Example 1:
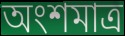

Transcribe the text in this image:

অংশমাত্র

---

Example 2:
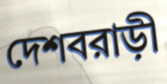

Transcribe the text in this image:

দেশবরাড়ী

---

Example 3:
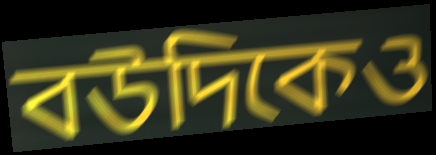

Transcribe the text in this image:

বউদিকেও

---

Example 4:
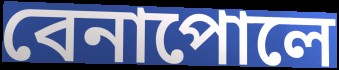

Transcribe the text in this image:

বেনাপোলে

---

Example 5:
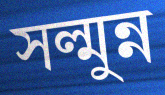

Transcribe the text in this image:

সল্মুন্ন